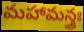
మహామన్త్రః